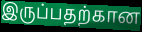
இருப்பதற்கான